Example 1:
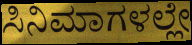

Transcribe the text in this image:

ಸಿನಿಮಾಗಳಲ್ಲೇ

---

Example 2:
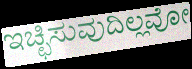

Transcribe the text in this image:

ಇಚ್ಛಿಸುವುದಿಲ್ಲವೋ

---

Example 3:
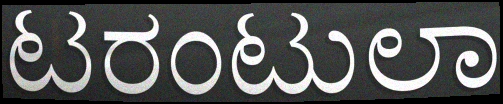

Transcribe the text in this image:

ಟರಂಟುಲಾ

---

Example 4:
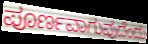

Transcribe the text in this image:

ಪೂರ್ಣವಾಗುವುದೆಂದು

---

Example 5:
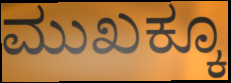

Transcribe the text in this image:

ಮುಖಕ್ಕೂ